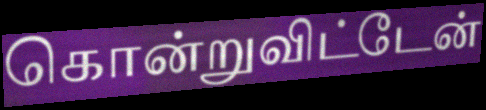
கொன்றுவிட்டேன்